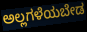
ಅಲ್ಲಗಳೆಯಬೇಡ